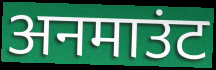
अनमाउंट